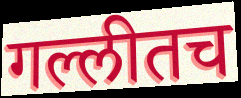
गल्लीतच